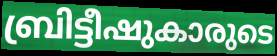
ബ്രിട്ടീഷുകാരുടെ